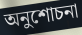
অনুশোচনা